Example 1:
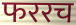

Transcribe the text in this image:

फररच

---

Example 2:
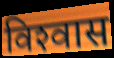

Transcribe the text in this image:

विश्वास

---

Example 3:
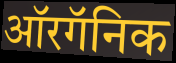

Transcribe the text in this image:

ऑरगॅनिक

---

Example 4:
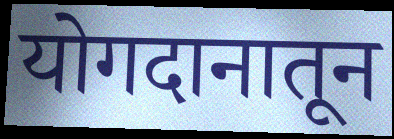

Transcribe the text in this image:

योगदानातून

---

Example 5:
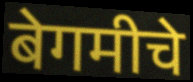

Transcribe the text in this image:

बेगमीचे